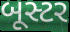
બૂસ્ટર